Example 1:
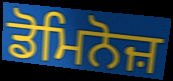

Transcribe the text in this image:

ਡੋਮਿਨੋਜ਼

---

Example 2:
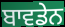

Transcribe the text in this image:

ਬਾਵਡੇਨ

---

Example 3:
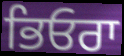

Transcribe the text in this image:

ਭਿਓਰਾ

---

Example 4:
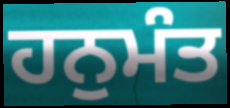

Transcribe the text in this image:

ਹਨੁਮੰਤ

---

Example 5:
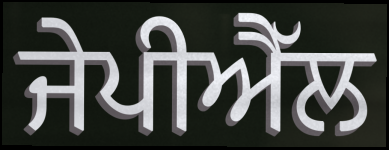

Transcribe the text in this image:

ਜੇਪੀਐੱਲ